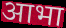
आभा